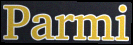
Parmi